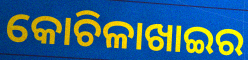
କୋଚିଳାଖାଇର